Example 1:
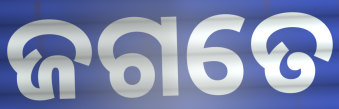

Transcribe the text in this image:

ଜଗତେ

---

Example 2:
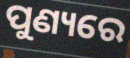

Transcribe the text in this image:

ପୁଣ୍ୟରେ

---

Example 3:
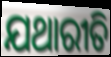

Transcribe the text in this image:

ଯଥାରୀତି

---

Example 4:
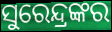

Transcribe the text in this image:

ସୁରେନ୍ଦ୍ରଙ୍କର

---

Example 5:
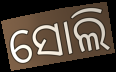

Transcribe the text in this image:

ସୋଲି